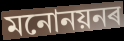
মনোনয়নৰ